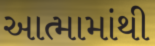
આત્મામાંથી